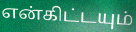
என்கிட்டயும்